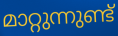
മാറ്റുന്നുണ്ട്